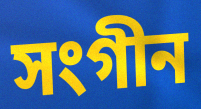
সংগীন